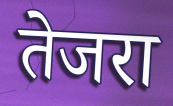
तेजरा